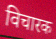
विचारक